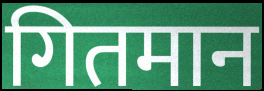
गितमान